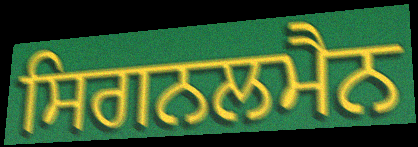
ਸਿਗਨਲਮੈਨ